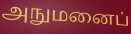
அநுமனைப்